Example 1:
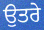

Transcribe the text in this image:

ਉਤਰੇ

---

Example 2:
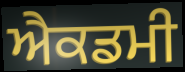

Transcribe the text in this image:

ਐਕਡਮੀ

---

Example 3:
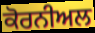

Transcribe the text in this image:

ਕੋਰਨੀਅਲ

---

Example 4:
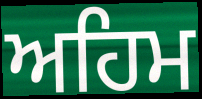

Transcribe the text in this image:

ਅਹਿਮ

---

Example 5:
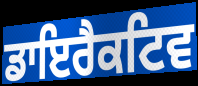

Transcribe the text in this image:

ਡਾਇਰੈਕਟਿਵ